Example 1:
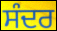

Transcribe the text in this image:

ਸੰਦਰ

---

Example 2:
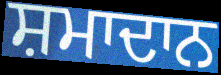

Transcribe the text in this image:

ਸ਼ਮਾਦਾਨ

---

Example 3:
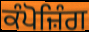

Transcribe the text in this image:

ਕੰਪੋਜ਼ਿੰਗ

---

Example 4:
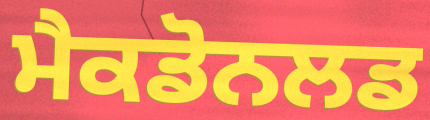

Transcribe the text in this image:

ਮੈਕਡੋਨਲਡ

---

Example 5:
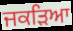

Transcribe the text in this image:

ਜਕੜਿਆ